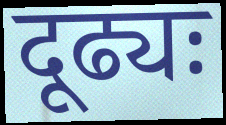
दूढ्यः